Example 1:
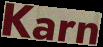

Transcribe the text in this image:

Karn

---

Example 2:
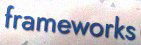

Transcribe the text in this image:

frameworks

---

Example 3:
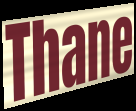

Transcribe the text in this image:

Thane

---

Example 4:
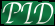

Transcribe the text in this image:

PID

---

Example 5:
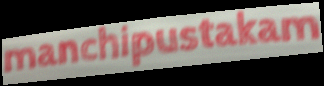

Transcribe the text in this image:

manchipustakam